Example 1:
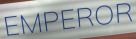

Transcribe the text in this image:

EMPEROR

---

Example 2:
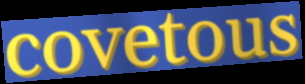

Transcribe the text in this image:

covetous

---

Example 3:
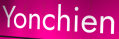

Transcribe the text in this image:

Yonchien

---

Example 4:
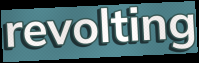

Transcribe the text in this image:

revolting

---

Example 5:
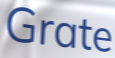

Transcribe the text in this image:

Grate